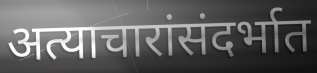
अत्याचारांसंदर्भात